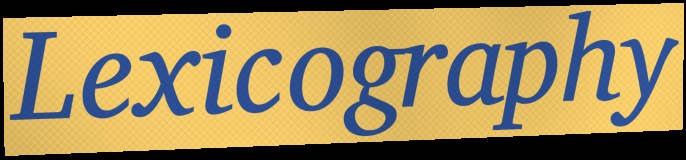
Lexicography